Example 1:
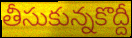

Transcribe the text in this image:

తీసుకున్నకొద్దీ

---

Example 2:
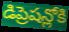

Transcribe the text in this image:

డిప్రెషన్లోకి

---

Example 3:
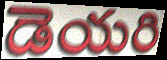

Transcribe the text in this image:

డెయరి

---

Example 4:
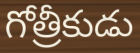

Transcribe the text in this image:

గోత్రీకుడు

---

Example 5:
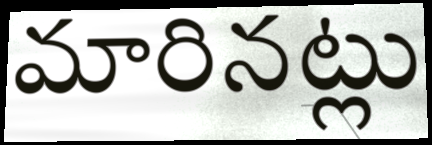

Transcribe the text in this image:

మారినట్లు